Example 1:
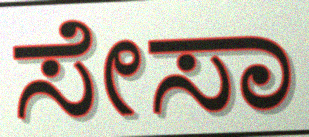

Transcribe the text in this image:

ಸೇಸಾ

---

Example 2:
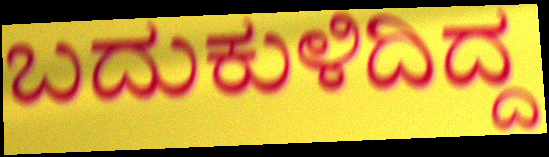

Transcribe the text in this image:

ಬದುಕುಳಿದಿದ್ದ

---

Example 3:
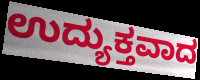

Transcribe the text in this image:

ಉದ್ಯುಕ್ತವಾದ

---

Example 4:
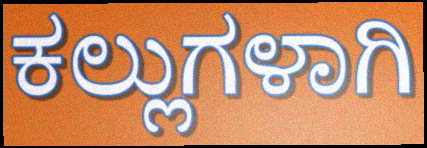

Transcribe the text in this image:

ಕಲ್ಲುಗಳಾಗಿ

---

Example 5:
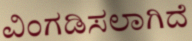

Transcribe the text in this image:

ವಿಂಗಡಿಸಲಾಗಿದೆ